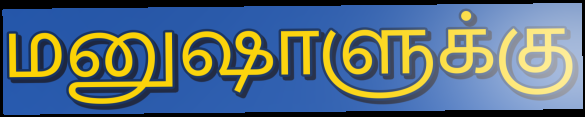
மனுஷாளுக்கு